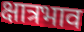
क्षात्रभाव